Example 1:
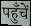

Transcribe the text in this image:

पहुँचें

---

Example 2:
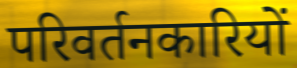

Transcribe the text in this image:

परिवर्तनकारियों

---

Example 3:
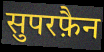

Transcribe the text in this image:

सुपरफ़ैन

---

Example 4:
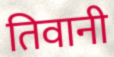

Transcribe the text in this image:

तिवानी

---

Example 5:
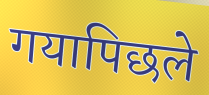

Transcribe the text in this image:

गयापिछले